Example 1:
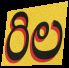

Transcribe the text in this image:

రిల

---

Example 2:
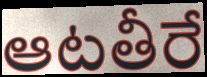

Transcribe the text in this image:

ఆటతీరే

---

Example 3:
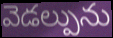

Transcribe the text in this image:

వెడల్పును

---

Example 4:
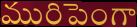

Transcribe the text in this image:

మురిపెంగా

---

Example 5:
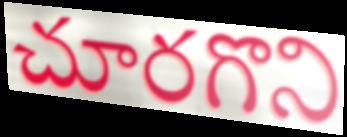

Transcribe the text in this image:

చూరగొని